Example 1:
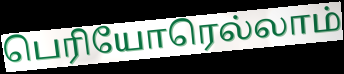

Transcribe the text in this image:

பெரியோரெல்லாம்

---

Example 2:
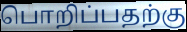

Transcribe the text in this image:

பொறிப்பதற்கு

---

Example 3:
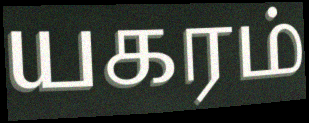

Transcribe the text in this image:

யகரம்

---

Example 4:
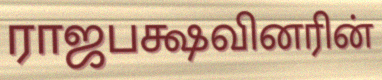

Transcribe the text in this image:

ராஜபக்ஷவினரின்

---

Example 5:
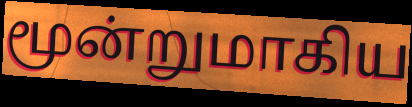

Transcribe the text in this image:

மூன்றுமாகிய